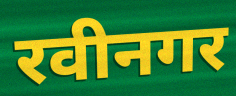
रवीनगर